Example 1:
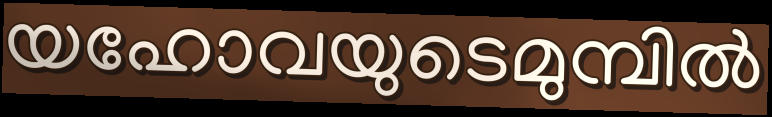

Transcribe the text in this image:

യഹോവയുടെമുമ്പിൽ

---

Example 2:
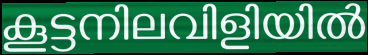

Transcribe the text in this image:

കൂട്ടനിലവിളിയിൽ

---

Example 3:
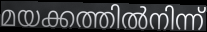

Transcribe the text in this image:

മയക്കത്തിൽനിന്ന്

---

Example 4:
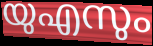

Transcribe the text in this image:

യുഎസും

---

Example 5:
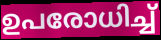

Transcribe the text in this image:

ഉപരോധിച്ച്